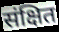
संक्षित